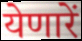
येणारें